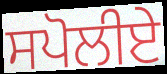
ਸਪੋਲੀਏ